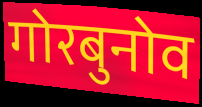
गोरबुनोव